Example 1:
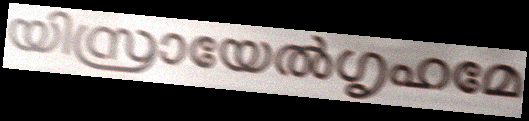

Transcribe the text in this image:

യിസ്രായേൽഗൃഹമേ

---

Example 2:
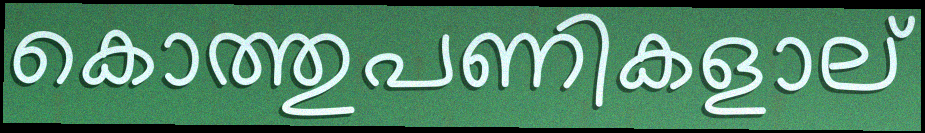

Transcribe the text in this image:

കൊത്തുപണികളാല്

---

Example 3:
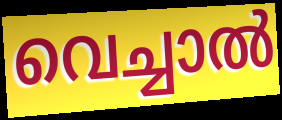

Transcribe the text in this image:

വെച്ചാൽ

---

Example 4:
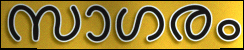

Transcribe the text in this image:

സാഗരം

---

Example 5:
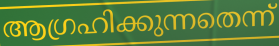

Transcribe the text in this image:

ആഗ്രഹിക്കുന്നതെന്ന്